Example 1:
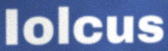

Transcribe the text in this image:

Iolcus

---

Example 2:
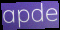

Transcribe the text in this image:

apde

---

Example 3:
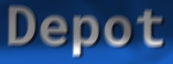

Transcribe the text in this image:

Depot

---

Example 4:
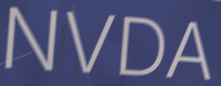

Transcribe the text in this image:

NVDA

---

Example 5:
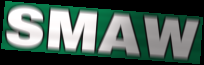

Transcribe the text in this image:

SMAW